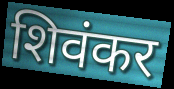
शिवंकर